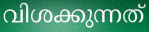
വിശക്കുന്നത്